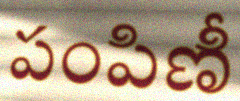
పంపిణీ